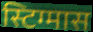
स्टिग्मास